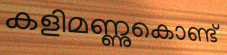
കളിമണ്ണുകൊണ്ട്